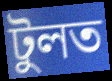
টুলত